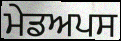
ਮੇਡਅਪਸ